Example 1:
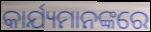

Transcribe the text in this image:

କାର୍ଯ୍ୟମାନଙ୍କରେ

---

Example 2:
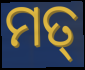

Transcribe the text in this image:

ମତ୍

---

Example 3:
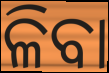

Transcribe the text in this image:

ଳିବା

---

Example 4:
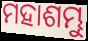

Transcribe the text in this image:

ମହାଶମ୍ଭୁ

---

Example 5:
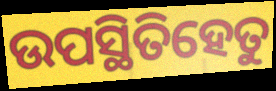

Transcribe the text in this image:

ଉପସ୍ଥିତିହେତୁ